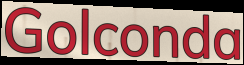
Golconda